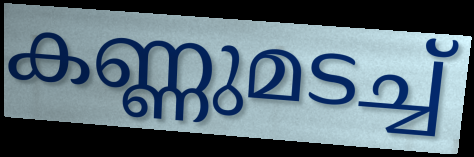
കണ്ണുമടച്ച്